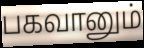
பகவானும்